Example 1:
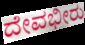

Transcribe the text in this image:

ದೇವಭೀರು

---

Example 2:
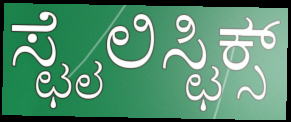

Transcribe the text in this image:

ಸ್ಟೈಲಿಸ್ಟಿಕ್ಸ್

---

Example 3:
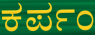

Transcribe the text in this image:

ಕರ್ಪಂ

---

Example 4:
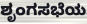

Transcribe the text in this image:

ಶೃಂಗಸಭೆಯ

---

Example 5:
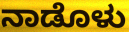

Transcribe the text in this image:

ನಾಡೊಳು